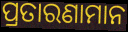
ପ୍ରତାରଣାମାନ